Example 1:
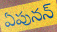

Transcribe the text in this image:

ఏపునన్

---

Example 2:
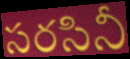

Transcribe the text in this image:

సరసినీ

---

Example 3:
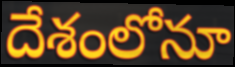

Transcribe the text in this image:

దేశంలోనూ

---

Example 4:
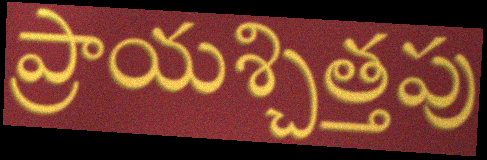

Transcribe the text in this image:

ప్రాయశ్చిత్తపు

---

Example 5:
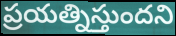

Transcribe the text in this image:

ప్రయత్నిస్తుందని